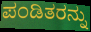
ಪಂಡಿತರನ್ನು